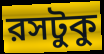
রসটুকু